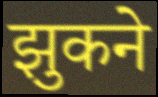
झुकने